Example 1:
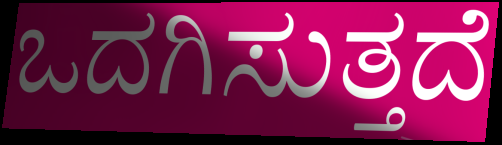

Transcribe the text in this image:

ಒದಗಿಸುತ್ತದೆ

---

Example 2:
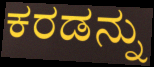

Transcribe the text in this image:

ಕರಡನ್ನು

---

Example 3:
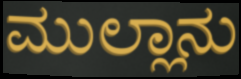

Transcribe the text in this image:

ಮುಲ್ಲಾನು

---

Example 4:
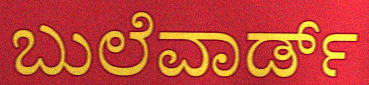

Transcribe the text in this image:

ಬುಲೆವಾರ್ಡ್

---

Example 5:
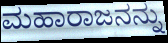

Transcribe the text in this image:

ಮಹಾರಾಜನನ್ನು